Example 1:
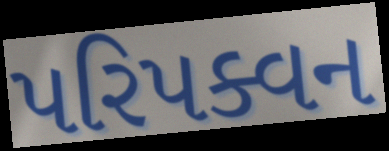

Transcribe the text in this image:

પરિપક્વન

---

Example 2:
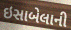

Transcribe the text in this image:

ઇસાબેલાની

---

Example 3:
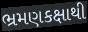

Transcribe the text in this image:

ભ્રમણકક્ષાથી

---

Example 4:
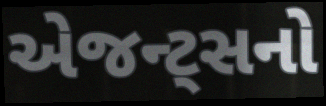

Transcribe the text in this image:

એજન્ટ્સનો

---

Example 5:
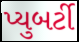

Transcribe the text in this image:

પ્યુબર્ટી